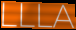
LLLA